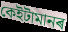
কেইটামানৰ